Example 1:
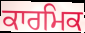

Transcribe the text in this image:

ਕਾਰਮਿਕ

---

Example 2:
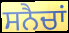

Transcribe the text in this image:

ਸਨੈਚਾਂ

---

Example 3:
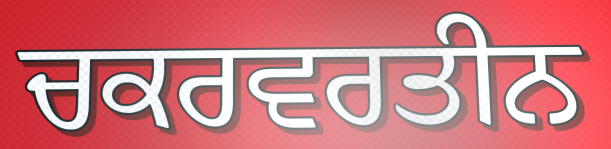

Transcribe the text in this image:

ਚਕਰਵਰਤੀਨ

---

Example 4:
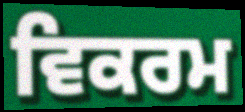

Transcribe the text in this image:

ਵਿਕਰਮ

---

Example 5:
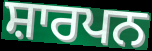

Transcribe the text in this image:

ਸ਼ਾਰਪਨ